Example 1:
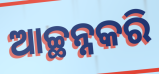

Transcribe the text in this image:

ଆଚ୍ଛନ୍ନକରି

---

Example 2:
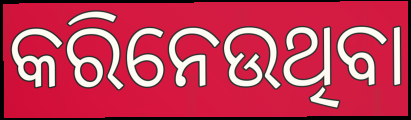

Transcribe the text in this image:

କରିନେଉଥିବା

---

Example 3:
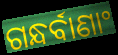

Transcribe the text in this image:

ଗନ୍ଧର୍ବାଣାଂ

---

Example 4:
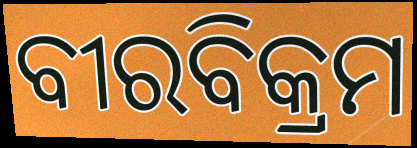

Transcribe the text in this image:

ବୀରବିକ୍ରମ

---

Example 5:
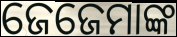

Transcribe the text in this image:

ଜେଜେମାଙ୍କ